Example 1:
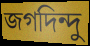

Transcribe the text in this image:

জগদিন্দু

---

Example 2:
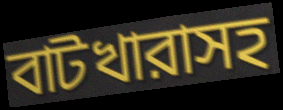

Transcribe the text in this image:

বাটখারাসহ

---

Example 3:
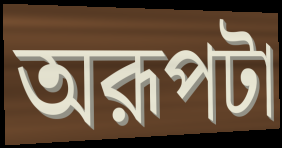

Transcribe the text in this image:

অরূপটা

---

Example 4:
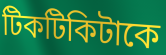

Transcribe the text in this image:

টিকটিকিটাকে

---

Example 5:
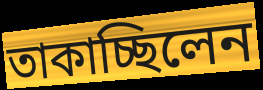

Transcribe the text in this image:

তাকাচ্ছিলেন